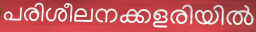
പരിശീലനക്കളരിയിൽ